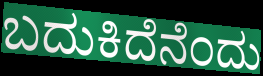
ಬದುಕಿದೆನೆಂದು